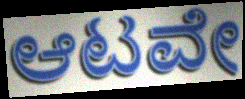
ಆಟವೇ